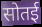
सोतई